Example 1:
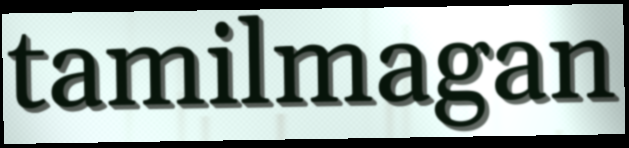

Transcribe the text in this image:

tamilmagan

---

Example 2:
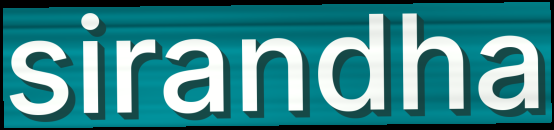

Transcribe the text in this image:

sirandha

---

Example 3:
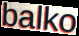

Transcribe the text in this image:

balko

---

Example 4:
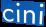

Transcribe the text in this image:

cini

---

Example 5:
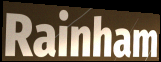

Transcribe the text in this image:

Rainham